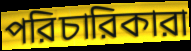
পরিচারিকারা